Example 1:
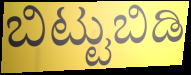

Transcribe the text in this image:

ಬಿಟ್ಟುಬಿಡಿ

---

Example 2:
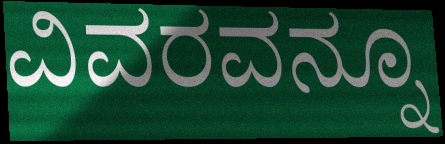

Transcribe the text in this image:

ವಿವರವನ್ನೂ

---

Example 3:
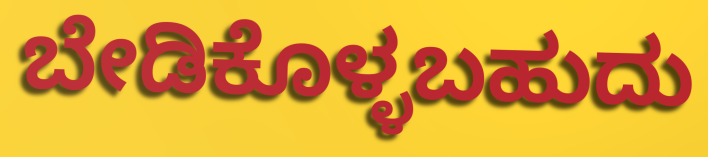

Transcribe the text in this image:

ಬೇಡಿಕೊಳ್ಳಬಹುದು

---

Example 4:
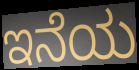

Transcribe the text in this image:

ಇನೆಯ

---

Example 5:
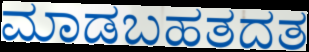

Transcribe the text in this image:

ಮಾಡಬಹತದತ